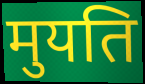
मुयति